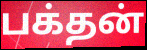
பக்தன்